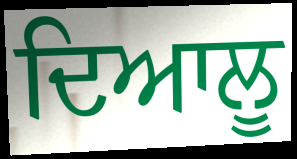
ਦਿਆਲੂ